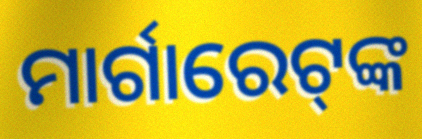
ମାର୍ଗାରେଟ୍‍ଙ୍କ